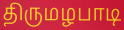
திருமழபாடி